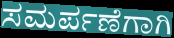
ಸಮರ್ಪಣೆಗಾಗಿ